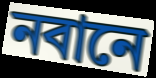
নবানে